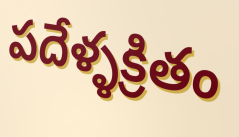
పదేళ్ళక్రితం